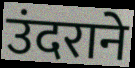
उंदराने